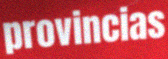
provincias